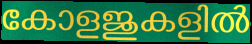
കോളജുകളിൽ